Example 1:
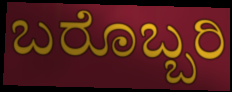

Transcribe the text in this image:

ಬರೊಬ್ಬರಿ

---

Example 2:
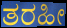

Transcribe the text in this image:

ತರಹೀ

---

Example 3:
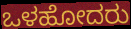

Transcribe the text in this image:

ಒಳಹೋದರು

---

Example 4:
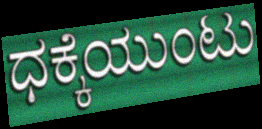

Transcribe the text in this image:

ಧಕ್ಕೆಯುಂಟು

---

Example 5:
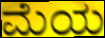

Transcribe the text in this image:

ಮೆಯ